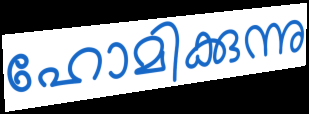
ഹോമിക്കുന്നു